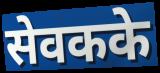
सेवकके